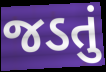
જડતું